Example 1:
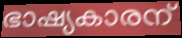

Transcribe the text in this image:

ഭാഷ്യകാരന്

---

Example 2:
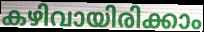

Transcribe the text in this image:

കഴിവായിരിക്കാം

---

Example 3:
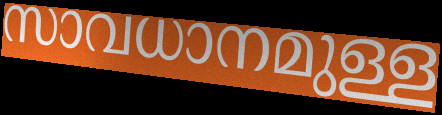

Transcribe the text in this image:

സാവധാനമുള്ള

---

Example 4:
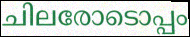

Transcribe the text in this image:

ചിലരോടൊപ്പം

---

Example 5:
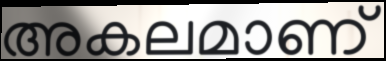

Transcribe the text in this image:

അകലമാണ്